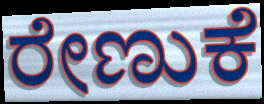
ರೇಣುಕೆ